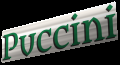
Puccini